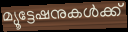
മ്യൂട്ടേഷനുകൾക്ക്